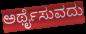
ಅರ್ಥೈಸುವದು